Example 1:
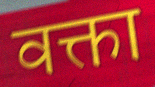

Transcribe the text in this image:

वक्ता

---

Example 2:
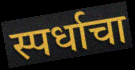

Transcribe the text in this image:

स्पर्धाचा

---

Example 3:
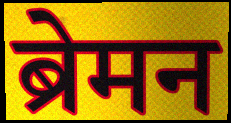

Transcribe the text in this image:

ब्रेमन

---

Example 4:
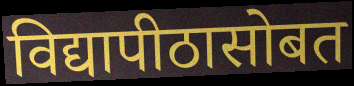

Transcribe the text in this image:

विद्यापीठासोबत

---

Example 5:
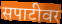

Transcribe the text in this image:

सपाटीवर